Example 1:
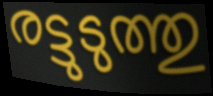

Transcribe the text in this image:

രട്ടുടുത്തു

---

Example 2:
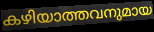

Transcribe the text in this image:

കഴിയാത്തവനുമായ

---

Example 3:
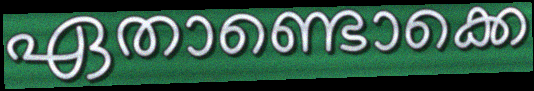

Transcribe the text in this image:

ഏതാണ്ടൊക്കെ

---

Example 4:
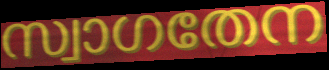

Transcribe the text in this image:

സ്വാഗതേന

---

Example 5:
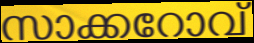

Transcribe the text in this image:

സാക്കറോവ്